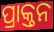
ପ୍ରାକ୍ତନ